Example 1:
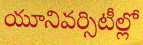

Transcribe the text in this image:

యూనివర్సిటీల్లో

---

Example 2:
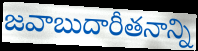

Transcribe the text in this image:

జవాబుదారీతనాన్ని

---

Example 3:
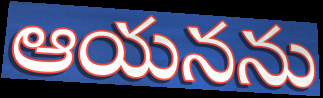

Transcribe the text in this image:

ఆయనను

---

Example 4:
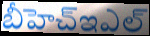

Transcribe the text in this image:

బీహెచ్ఇఎల్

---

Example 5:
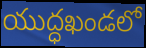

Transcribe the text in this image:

యుద్ధఖండలో